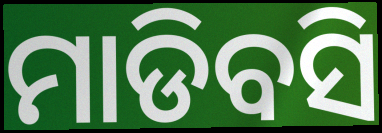
ମାଡିବସି